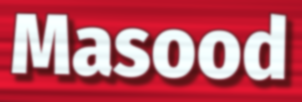
Masood